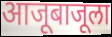
आजूबाजूला